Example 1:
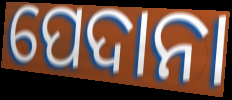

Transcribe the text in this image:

ପେଦାନା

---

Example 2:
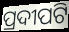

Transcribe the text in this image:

ପ୍ରଦୀପଟି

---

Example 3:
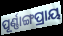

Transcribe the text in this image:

ପୂର୍ଣ୍ଣାଙ୍ଗପ୍ରାୟ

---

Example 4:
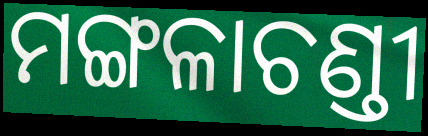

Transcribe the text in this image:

ମଙ୍ଗଳାଚଣ୍ଡୀ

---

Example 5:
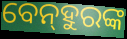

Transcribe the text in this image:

ବେନ୍‍ହୁରଙ୍କ